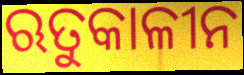
ଋତୁକାଳୀନ